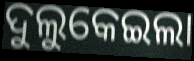
ଦୁଲୁକେଇଲା